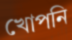
খোপনি